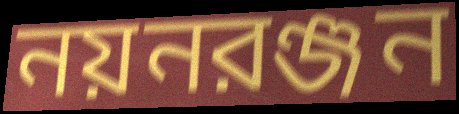
নয়নরঞ্জন